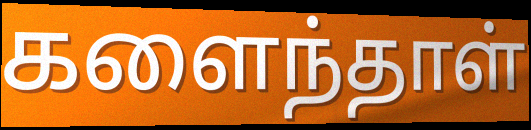
களைந்தாள்